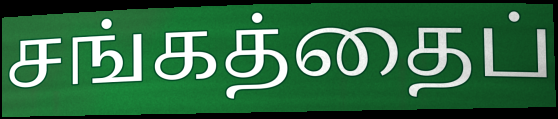
சங்கத்தைப்